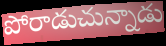
పోరాడుచున్నాడు